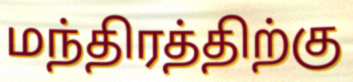
மந்திரத்திற்கு